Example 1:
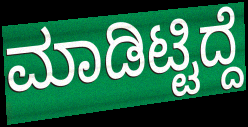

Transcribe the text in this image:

ಮಾಡಿಟ್ಟಿದ್ದೆ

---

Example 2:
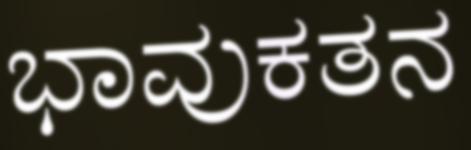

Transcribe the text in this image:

ಭಾವುಕತನ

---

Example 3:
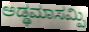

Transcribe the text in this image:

ಅಡ್ಢಮಾಸಮ್ಪಿ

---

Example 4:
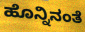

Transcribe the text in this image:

ಹೊನ್ನಿನಂತೆ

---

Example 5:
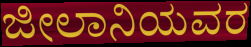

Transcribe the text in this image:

ಜೀಲಾನಿಯವರ